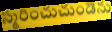
స్మరించుచుండెను